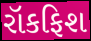
રૉકફિશ